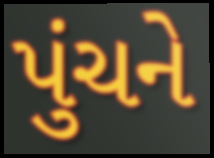
પુંચને